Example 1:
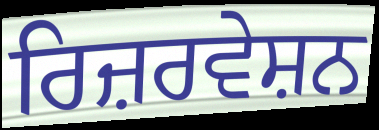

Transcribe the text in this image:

ਰਿਜ਼ਰਵੇਸ਼ਨ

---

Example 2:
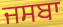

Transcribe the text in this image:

ਜਸਬਾ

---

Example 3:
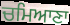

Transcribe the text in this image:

ਚਮਿਆਣਾ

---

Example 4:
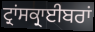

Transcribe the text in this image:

ਟ੍ਰਾਂਸਕ੍ਰਾਈਬਰਾਂ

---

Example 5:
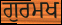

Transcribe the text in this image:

ਗੁਰਮਖ